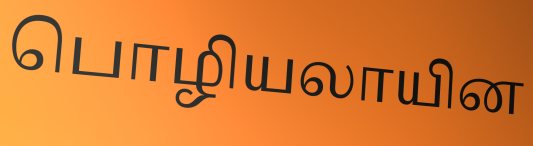
பொழியலாயின